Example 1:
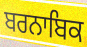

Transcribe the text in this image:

ਬਰਨਾਬਿਕ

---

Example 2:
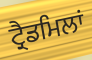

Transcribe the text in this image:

ਟ੍ਰੈਡਮਿਲਾਂ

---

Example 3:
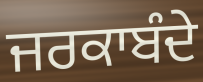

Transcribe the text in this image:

ਜਰਕਾਬੰਦੇ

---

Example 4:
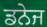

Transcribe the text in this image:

ਡਨੇਜ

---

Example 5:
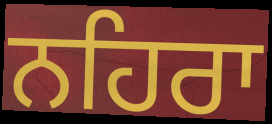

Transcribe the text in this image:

ਨਹਿਰਾ